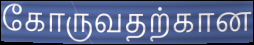
கோருவதற்கான